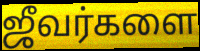
ஜீவர்களை